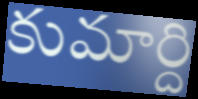
కుమార్ది